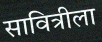
सावित्रीला